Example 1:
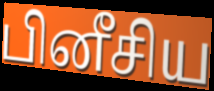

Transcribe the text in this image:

பினீசிய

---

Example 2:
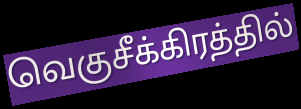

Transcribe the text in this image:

வெகுசீக்கிரத்தில்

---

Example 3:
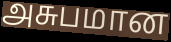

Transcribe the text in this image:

அசுபமான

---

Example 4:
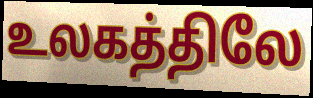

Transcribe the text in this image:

உலகத்திலே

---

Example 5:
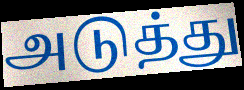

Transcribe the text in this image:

அடுத்து